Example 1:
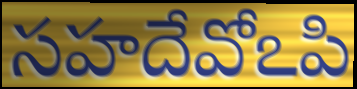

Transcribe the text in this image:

సహదేవోఽపి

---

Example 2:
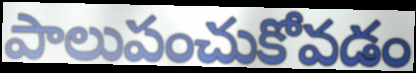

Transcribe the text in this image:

పాలుపంచుకోవడం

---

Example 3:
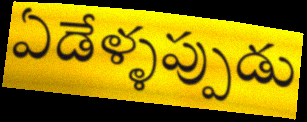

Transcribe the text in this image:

ఏడేళ్ళప్పుడు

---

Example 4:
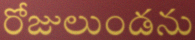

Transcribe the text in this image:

రోజులుండను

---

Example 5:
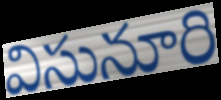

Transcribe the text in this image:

విసునూరి